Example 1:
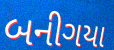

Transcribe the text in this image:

બનીગયા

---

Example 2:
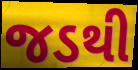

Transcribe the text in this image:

જડથી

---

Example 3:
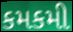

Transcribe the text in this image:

કમકમી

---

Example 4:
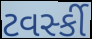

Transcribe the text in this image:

ટવર્સ્કી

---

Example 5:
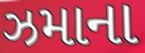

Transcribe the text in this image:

ઝમાના